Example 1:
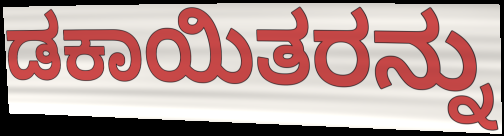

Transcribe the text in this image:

ಡಕಾಯಿತರನ್ನು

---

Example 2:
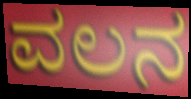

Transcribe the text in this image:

ವಲನ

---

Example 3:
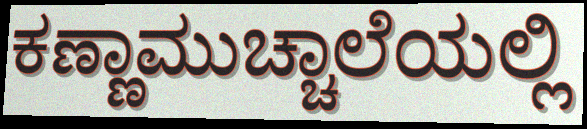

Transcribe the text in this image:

ಕಣ್ಣಾಮುಚ್ಚಾಲೆಯಲ್ಲಿ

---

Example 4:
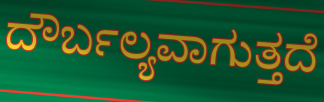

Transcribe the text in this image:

ದೌರ್ಬಲ್ಯವಾಗುತ್ತದೆ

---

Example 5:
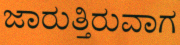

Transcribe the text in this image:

ಜಾರುತ್ತಿರುವಾಗ